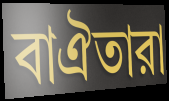
বাঐতারা